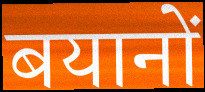
बयानों